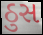
ઠુસ